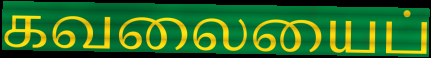
கவலையைப்